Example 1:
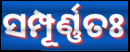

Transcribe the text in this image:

ସମ୍ପୂର୍ଣ୍ଣତଃ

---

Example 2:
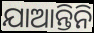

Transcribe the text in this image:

ଯାଆନ୍ତିନି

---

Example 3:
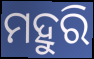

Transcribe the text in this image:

ମହୁରି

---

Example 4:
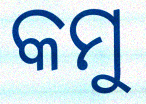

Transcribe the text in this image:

କମୁ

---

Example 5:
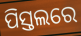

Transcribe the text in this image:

ପିସ୍ତଲରେ